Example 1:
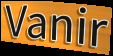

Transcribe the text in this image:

Vanir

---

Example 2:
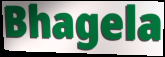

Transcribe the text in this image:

Bhagela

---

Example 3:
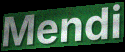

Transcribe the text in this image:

Mendi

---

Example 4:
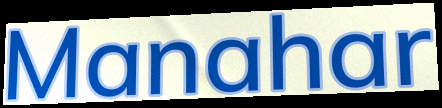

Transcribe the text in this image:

Manahar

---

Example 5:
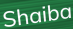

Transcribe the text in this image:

Shaiba